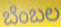
ಬೆಂಬಲ